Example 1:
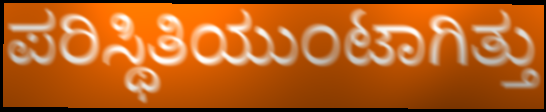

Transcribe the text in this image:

ಪರಿಸ್ಥಿತಿಯುಂಟಾಗಿತ್ತು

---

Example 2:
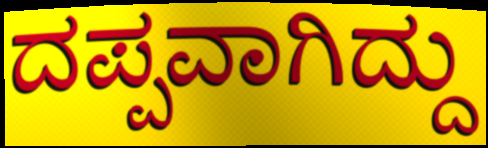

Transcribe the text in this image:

ದಪ್ಪವಾಗಿದ್ದು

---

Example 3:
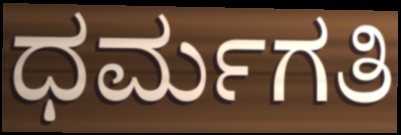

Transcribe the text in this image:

ಧರ್ಮಗತಿ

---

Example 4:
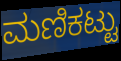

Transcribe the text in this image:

ಮಣಿಕಟ್ಟು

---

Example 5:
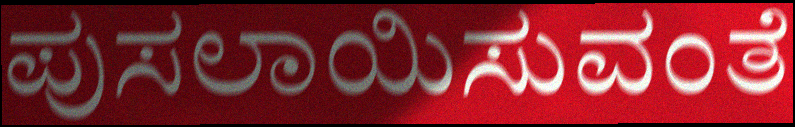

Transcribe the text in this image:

ಪುಸಲಾಯಿಸುವಂತೆ